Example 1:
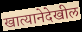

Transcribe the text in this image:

खात्यानेदेखील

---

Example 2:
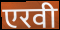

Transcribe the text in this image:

एरवी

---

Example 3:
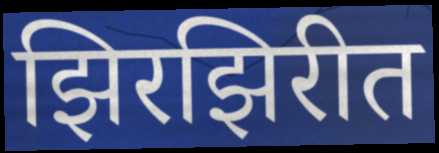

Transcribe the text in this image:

झिरझिरीत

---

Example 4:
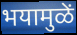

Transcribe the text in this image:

भयामुळें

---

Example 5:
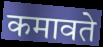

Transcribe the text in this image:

कमावते